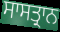
ਸਾਸਤ੍ਰਾਨ